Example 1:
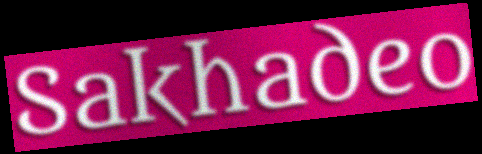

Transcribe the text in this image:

Sakhadeo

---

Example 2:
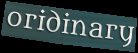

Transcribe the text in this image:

oridinary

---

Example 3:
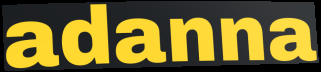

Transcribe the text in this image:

adanna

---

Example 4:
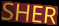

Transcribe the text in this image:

SHER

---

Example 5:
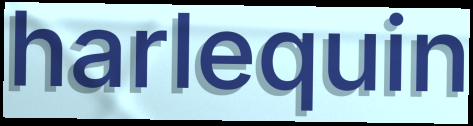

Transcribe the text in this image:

harlequin